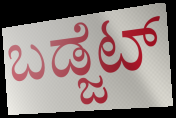
ಬಡ್ಜೆಟ್